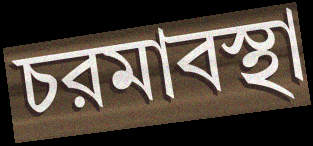
চরমাবস্থা